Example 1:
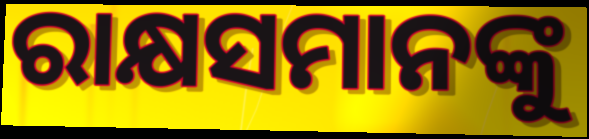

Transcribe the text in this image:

ରାକ୍ଷସମାନଙ୍କୁ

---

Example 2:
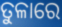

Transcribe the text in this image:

ତୁଳାରେ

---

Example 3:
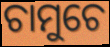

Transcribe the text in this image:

ଚାମୁଚେ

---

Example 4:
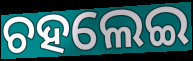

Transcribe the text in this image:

ଚହଲେଇ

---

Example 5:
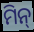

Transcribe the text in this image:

ମିନ୍